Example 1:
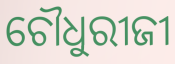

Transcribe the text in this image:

ଚୌଧୁରୀଜୀ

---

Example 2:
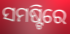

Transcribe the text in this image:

ସମଷ୍ଟିରେ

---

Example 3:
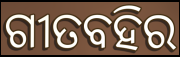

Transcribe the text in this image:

ଗୀତବହିର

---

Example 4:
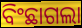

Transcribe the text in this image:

ବିଂଛାଗଲା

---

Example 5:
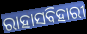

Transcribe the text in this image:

ରାହାସବିହାରୀ